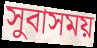
সুবাসময়